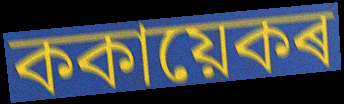
ককায়েকৰ